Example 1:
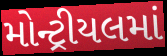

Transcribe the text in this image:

મોન્ટ્રીયલમાં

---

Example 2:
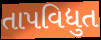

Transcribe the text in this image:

તાપવિદ્યુત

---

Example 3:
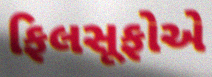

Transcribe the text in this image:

ફિલસૂફોએ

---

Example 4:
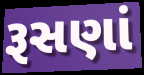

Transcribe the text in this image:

રૂસણાં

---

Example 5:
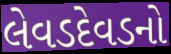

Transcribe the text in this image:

લેવડદેવડનો